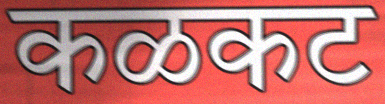
कळकट